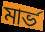
মার্ভ